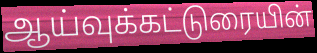
ஆய்வுக்கட்டுரையின்